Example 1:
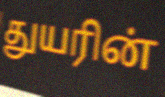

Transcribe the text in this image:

துயரின்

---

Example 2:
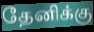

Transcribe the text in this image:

தேனிக்கு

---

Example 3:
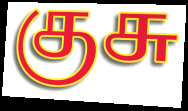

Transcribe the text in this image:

குசு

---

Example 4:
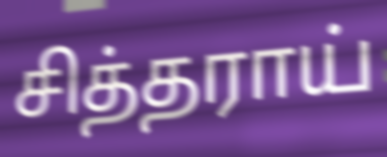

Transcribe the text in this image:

சித்தராய்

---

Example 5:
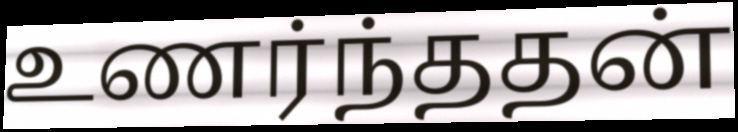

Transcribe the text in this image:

உணர்ந்ததன்